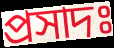
প্রসাদঃ